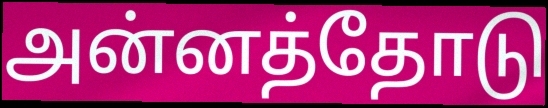
அன்னத்தோடு